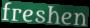
freshen